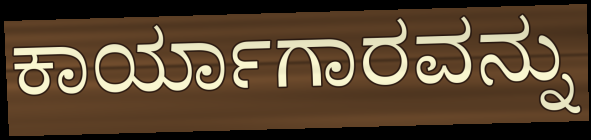
ಕಾರ್ಯಾಗಾರವನ್ನು